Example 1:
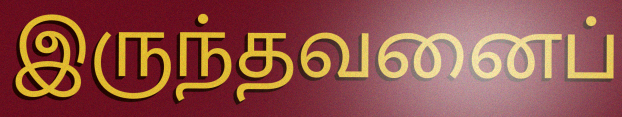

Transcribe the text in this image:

இருந்தவனைப்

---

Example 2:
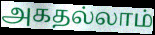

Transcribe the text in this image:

அகதல்லாம்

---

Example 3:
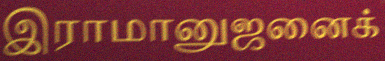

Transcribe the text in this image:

இராமானுஜனைக்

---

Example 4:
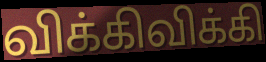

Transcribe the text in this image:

விக்கிவிக்கி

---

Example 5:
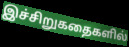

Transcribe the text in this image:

இச்சிறுகதைகளில்